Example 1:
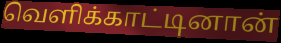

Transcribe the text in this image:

வெளிக்காட்டினான்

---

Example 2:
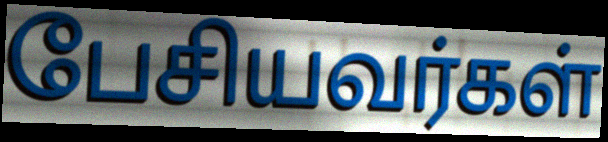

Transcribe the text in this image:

பேசியவர்கள்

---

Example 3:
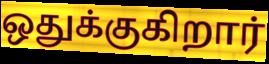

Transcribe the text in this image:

ஒதுக்குகிறார்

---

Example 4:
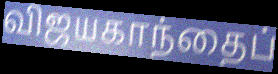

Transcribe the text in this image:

விஜயகாந்தைப்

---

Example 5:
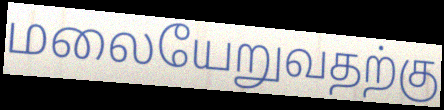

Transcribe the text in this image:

மலையேறுவதற்கு